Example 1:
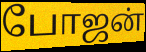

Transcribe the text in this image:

போஜன்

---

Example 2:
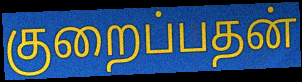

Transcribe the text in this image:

குறைப்பதன்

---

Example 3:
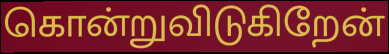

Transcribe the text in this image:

கொன்றுவிடுகிறேன்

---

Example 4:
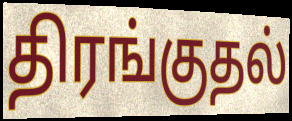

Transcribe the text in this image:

திரங்குதல்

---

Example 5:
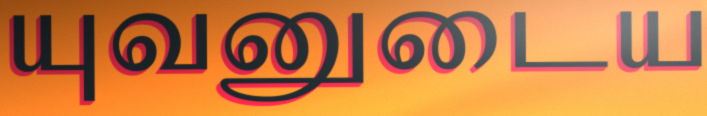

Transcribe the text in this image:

யுவனுடைய